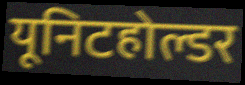
यूनिटहोल्डर